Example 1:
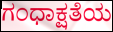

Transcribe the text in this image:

ಗಂಧಾಕ್ಷತೆಯ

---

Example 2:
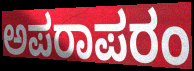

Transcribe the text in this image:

ಅಪರಾಪರಂ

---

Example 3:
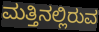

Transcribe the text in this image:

ಮತ್ತಿನಲ್ಲಿರುವ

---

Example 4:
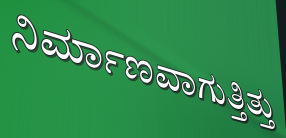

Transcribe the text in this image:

ನಿರ್ಮಾಣವಾಗುತ್ತಿತ್ತು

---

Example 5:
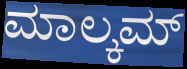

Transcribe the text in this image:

ಮಾಲ್ಕಮ್